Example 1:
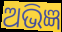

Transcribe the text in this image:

ଅଭିଜ୍ଞ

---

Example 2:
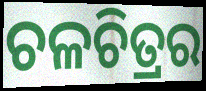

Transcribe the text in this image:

ଚଳଚିତ୍ରର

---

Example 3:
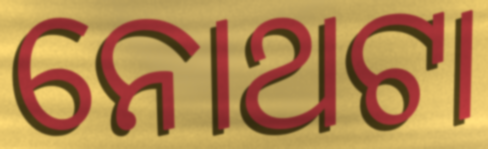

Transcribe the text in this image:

ନୋଥଟା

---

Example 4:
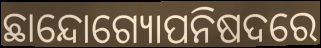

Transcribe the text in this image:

ଛାନ୍ଦୋଗ୍ୟୋପନିଷଦରେ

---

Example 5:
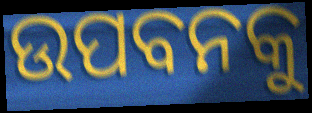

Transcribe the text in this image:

ଉପବନକୁ